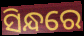
ସିନ୍ଧରେ